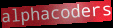
alphacoders